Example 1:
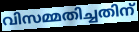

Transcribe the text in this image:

വിസമ്മതിച്ചതിന്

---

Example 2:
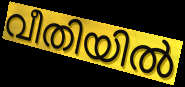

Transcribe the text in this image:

വീതിയിൽ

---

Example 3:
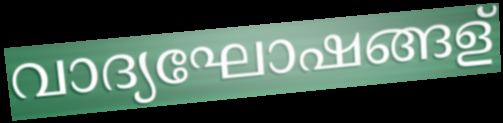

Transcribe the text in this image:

വാദ്യഘോഷങ്ങള്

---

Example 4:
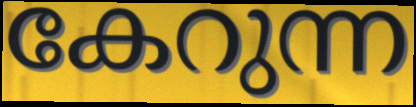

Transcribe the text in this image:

കേറുന്ന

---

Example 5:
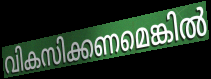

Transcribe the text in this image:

വികസിക്കണമെങ്കിൽ